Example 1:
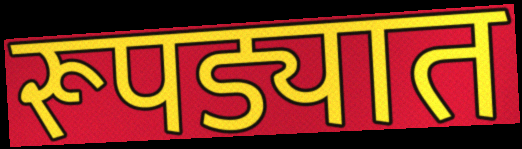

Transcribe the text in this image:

रूपड्यात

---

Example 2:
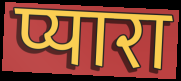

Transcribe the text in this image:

प्यारा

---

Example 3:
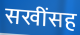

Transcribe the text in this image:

सखींसह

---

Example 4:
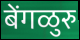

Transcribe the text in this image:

बेंगळुरु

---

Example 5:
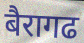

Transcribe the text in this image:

बैरागढ